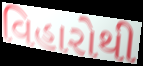
વિહારોથી